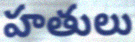
హతులు